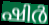
ഷിർ